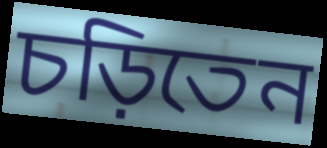
চড়িতেন